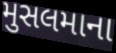
મુસલમાના